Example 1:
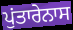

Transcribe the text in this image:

ਪੁਂਤਾਰੇਨਾਸ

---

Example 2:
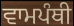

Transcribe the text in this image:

ਵਾਮਪੰਥੀ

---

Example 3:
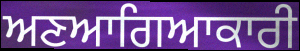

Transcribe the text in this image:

ਅਣਆਗਿਆਕਾਰੀ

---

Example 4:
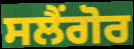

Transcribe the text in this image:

ਸਲੈਂਗੋਰ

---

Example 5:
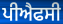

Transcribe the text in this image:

ਪੀਐਫਸੀ